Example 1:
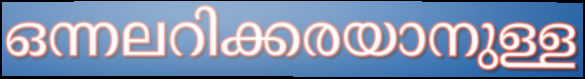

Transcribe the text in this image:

ഒന്നലറിക്കരയാനുള്ള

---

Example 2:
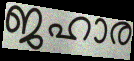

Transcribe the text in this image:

ജഹാര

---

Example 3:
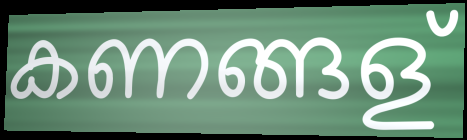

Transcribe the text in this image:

കണങ്ങള്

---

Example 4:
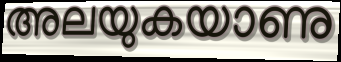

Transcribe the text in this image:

അലയുകയാണു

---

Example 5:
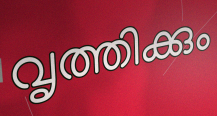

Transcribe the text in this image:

വൃത്തിക്കും